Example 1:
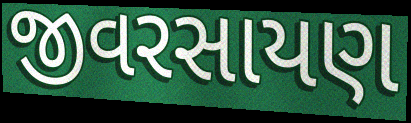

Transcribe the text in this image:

જીવરસાયણ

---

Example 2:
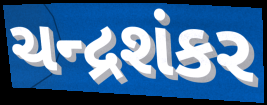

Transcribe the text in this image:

ચન્દ્રશંકર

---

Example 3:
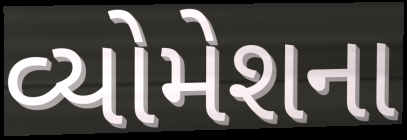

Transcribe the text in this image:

વ્યોમેશના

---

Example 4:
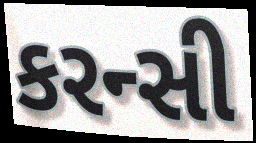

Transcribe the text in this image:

કરન્સી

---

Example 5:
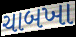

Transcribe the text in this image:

ચાબખા